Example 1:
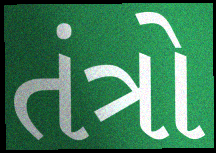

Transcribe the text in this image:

તંત્રો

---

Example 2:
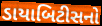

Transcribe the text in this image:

ડાયાબિટીસનો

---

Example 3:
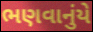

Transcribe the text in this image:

ભણવાનુંયે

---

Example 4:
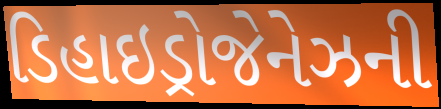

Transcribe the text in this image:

ડિહાઇડ્રોજેનેઝની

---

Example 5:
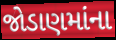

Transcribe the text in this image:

જોડાણમાંના